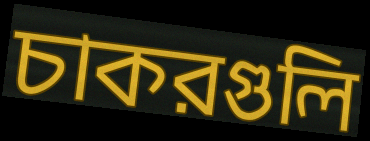
চাকরগুলি